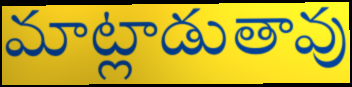
మాట్లాడుతావు